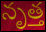
నృత్త